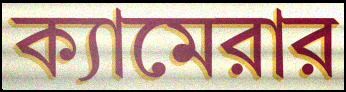
ক্যামেরার